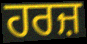
ਹਰਜ਼